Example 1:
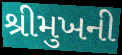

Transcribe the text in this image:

શ્રીમુખની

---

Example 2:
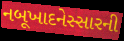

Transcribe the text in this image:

નબૂખાદનેસ્સારની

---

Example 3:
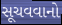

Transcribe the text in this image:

સૂચવવાનો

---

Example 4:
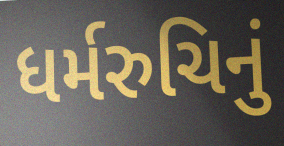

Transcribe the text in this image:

ધર્મરુચિનું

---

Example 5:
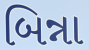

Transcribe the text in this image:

બિન્ના